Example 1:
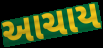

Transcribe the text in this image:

આચાય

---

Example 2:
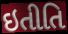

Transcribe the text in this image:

ઇતીતિ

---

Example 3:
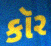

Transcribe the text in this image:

કૉર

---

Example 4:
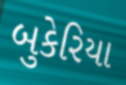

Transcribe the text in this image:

બુકેરિયા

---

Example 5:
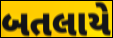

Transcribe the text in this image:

બતલાયે